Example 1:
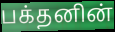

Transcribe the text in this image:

பக்தனின்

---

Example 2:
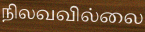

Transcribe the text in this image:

நிலவவில்லை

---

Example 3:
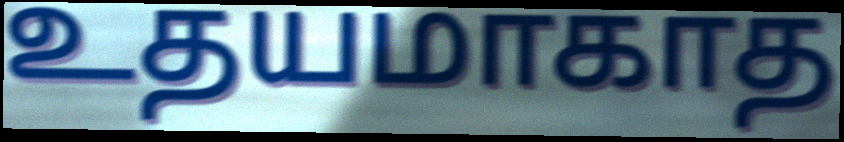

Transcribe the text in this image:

உதயமாகாத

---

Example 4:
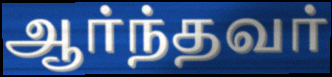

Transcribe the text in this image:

ஆர்ந்தவர்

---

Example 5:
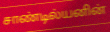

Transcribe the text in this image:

சாண்டில்யனின்